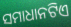
ସମାଧାନଟିଏ